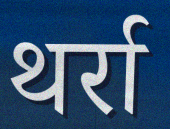
थर्रा